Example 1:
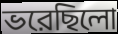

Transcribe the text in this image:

ভরেছিলো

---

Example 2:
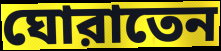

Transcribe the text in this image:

ঘোরাতেন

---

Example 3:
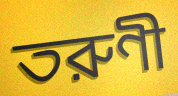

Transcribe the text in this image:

তরুণী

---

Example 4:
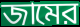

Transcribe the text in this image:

জামের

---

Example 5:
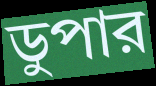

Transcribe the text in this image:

ডুপার